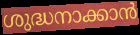
ശുദ്ധനാക്കാൻ